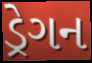
ડ્રેગન